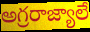
అగ్రరాజ్యాలే